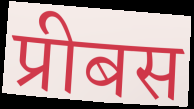
प्रीबस